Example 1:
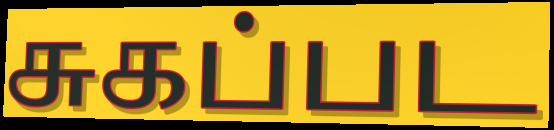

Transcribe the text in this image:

சுகப்பட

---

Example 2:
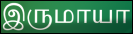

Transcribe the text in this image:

இருமாயா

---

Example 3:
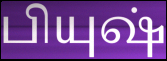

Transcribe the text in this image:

பியுஷ்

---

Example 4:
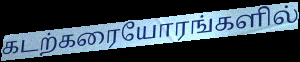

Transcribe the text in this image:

கடற்கரையோரங்களில்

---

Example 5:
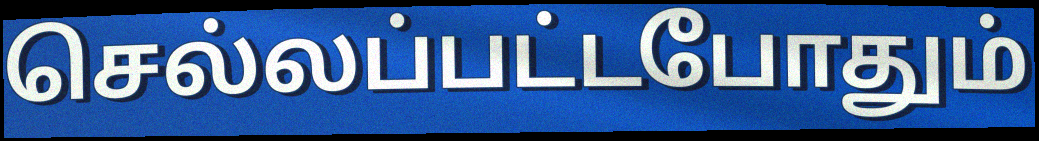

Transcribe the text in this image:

செல்லப்பட்டபோதும்